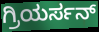
ಗ್ರಿಯರ್ಸನ್